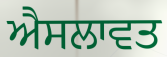
ਐਸਲਾਵਤ